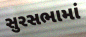
સુરસભામાં